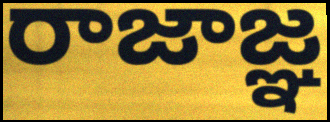
రాజాజ్ఞ